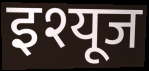
इश्यूज